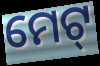
ମେଟ୍